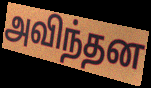
அவிந்தன